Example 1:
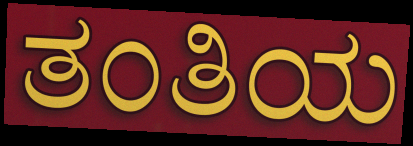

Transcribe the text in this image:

ತಂತಿಯ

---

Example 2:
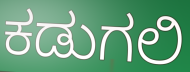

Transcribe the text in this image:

ಕಡುಗಲಿ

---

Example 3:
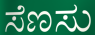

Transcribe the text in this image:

ಸೆಣಸು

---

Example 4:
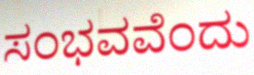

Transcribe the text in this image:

ಸಂಭವವೆಂದು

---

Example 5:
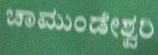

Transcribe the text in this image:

ಚಾಮುಂಡೇಶ್ವರಿ